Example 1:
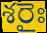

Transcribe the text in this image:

శరైః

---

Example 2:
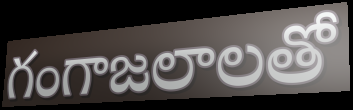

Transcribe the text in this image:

గంగాజలాలతో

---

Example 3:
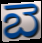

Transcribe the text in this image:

బె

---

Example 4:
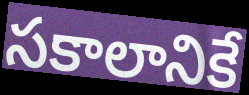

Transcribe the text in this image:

సకాలానికే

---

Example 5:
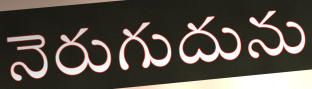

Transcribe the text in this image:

నెరుగుదును